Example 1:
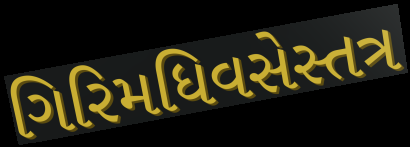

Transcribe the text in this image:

ગિરિમધિવસેસ્તત્ર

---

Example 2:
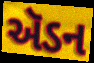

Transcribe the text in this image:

ઍડન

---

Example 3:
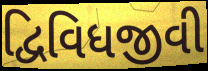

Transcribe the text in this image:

દ્વિવિધજીવી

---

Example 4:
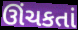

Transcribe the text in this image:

ઊંચકતાં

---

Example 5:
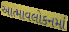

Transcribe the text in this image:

આત્માવલોકનમાં